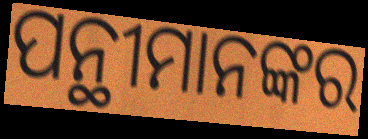
ପନ୍ଥୀମାନଙ୍କର